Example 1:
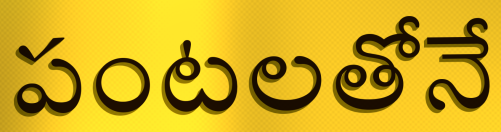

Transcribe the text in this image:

పంటలతోనే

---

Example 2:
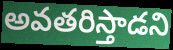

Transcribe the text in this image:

అవతరిస్తాడని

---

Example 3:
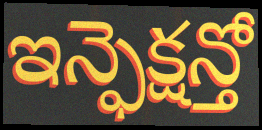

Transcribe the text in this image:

ఇన్ఫెక్షన్తో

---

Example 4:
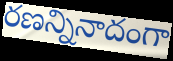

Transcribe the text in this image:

రణన్నినాదంగా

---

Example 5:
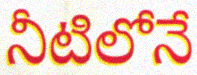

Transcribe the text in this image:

నీటిలోనే